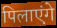
पिलाएंगे